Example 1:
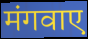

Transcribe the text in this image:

मंगवाए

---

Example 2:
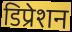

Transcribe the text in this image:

डिप्रेशन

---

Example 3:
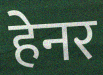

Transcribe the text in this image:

हेनर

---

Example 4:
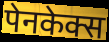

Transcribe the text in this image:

पेनकेक्स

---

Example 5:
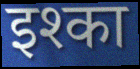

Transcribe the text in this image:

इश्का